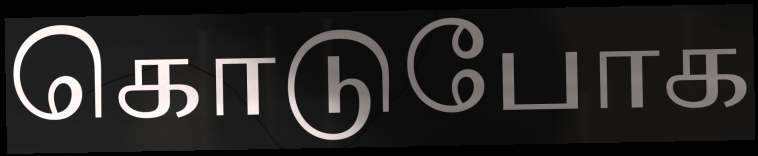
கொடுபோக